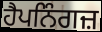
ਹੈਪਨਿੰਗਜ਼